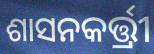
ଶାସନକର୍ତ୍ତ୍ରୀ